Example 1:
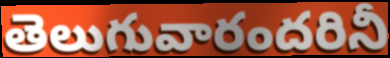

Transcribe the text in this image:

తెలుగువారందరినీ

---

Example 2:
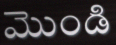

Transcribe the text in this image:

మొండి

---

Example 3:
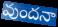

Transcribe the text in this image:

వుందనా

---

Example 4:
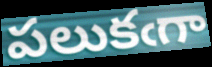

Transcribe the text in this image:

పలుకఁగా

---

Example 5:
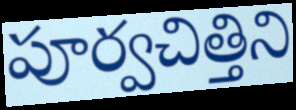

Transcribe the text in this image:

పూర్వచిత్తిని